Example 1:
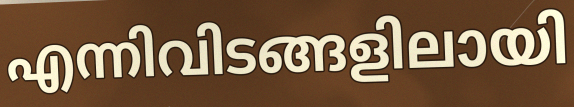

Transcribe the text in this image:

എന്നിവിടങ്ങളിലായി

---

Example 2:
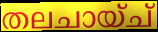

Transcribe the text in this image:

തലചായ്ച്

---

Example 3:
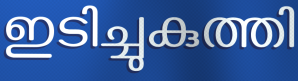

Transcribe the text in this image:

ഇടിച്ചുകുത്തി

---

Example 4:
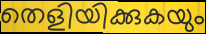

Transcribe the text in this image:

തെളിയിക്കുകയും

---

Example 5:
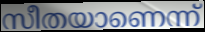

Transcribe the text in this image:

സീതയാണെന്ന്